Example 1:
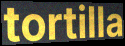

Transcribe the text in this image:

tortilla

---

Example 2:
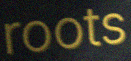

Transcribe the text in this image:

roots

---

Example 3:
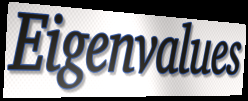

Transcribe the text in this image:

Eigenvalues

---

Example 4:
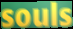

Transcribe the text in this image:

souls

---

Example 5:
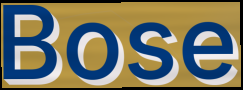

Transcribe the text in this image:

Bose